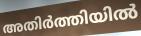
അതിർത്തിയിൽ